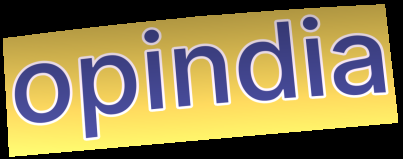
opindia